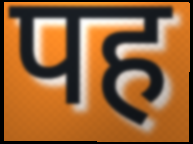
पह